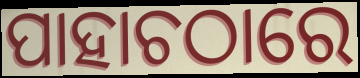
ପାହାଚଠାରେ